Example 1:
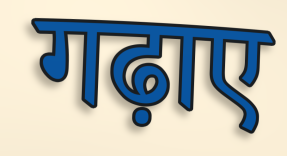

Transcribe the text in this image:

गढ़ाए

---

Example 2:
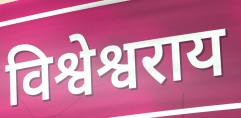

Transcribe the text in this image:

विश्वेश्वराय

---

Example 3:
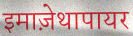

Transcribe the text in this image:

इमाज़ेथापायर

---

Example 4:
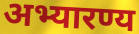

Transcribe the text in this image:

अभ्यारण्य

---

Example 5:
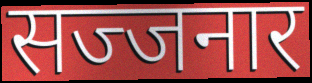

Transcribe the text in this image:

सज्जनार